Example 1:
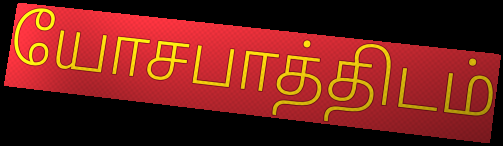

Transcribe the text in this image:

யோசபாத்திடம்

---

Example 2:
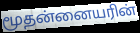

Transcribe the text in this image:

மூதன்னையரின்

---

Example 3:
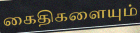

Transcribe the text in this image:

கைதிகளையும்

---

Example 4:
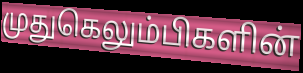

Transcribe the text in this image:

முதுகெலும்பிகளின்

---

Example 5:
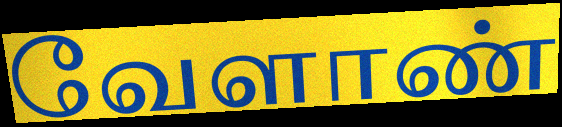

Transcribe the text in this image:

வேளாண்